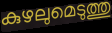
കുഴലുമെടുത്തു